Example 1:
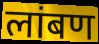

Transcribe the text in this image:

लांबण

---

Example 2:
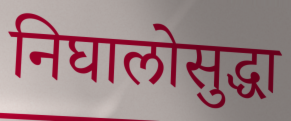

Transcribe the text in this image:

निघालोसुद्धा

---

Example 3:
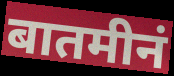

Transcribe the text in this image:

बातमीनं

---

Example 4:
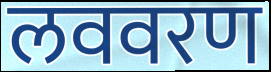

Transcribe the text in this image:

लववरण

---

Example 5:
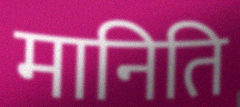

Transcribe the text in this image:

मानिति